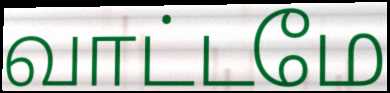
வாட்டமே